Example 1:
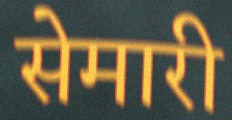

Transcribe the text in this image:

सेमारी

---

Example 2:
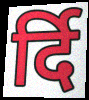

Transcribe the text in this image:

र्दि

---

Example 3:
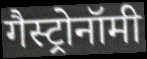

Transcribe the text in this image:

गैस्ट्रोनॉमी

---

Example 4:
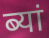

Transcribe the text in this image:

ब्यां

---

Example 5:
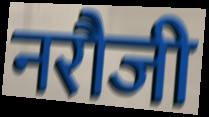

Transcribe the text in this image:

नरौजी